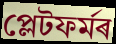
প্লেটফৰ্মৰ